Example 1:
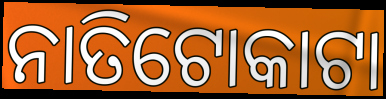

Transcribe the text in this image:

ନାତିଟୋକାଟା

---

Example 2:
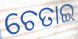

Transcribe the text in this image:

ଚେତାଇ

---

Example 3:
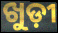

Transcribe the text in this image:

ଖୁଡ଼ୀ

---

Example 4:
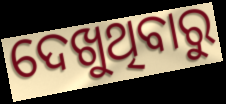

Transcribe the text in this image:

ଦେଖୁଥିବାରୁ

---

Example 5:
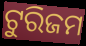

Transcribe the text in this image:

ଟୁରିଜମ